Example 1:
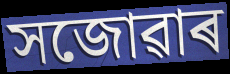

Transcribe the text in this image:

সজোৱাৰ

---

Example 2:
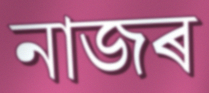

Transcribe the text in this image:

নাজৰ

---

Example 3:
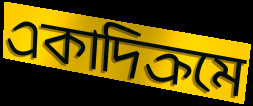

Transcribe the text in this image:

একাদিক্ৰমে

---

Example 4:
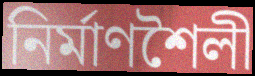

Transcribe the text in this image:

নিৰ্মাণশৈলী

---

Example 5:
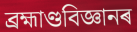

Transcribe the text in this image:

ব্ৰহ্মাণ্ডবিজ্ঞানৰ